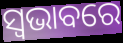
ସ୍ବଭାବରେ